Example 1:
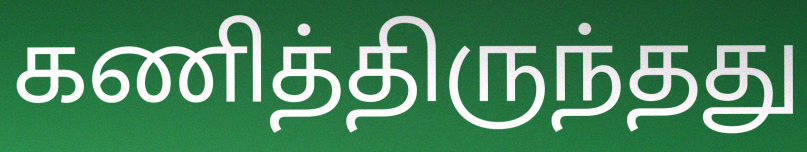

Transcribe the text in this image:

கணித்திருந்தது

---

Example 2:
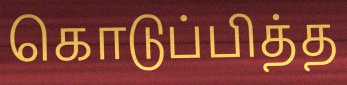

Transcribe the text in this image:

கொடுப்பித்த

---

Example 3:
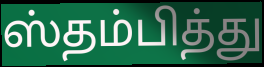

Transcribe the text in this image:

ஸ்தம்பித்து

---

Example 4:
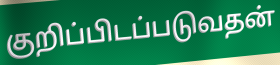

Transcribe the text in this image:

குறிப்பிடப்படுவதன்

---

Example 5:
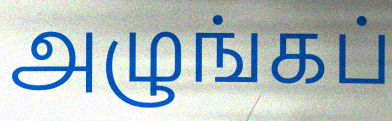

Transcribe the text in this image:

அழுங்கப்